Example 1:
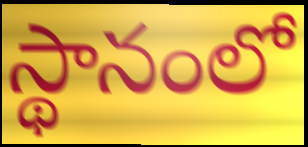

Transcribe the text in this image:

స్థానంలో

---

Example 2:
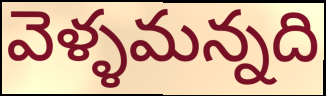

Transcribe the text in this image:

వెళ్ళమన్నది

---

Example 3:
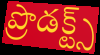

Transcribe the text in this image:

ప్రొడక్ట్స్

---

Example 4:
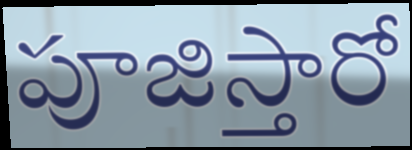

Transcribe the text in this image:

పూజిస్తారో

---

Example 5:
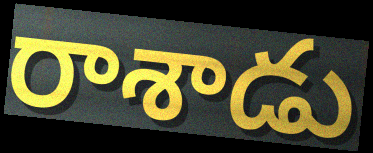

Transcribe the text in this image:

రాశాడు